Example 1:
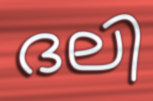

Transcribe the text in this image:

ദലി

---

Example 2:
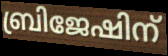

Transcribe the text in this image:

ബ്രിജേഷിന്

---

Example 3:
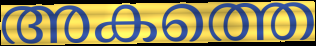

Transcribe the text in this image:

അകത്തെ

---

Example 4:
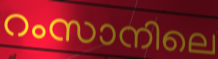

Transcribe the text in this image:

റംസാനിലെ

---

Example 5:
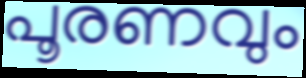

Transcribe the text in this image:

പൂരണവും